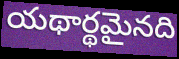
యథార్థమైనది